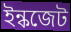
ইন্কজেট